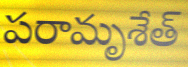
పరామృశేత్